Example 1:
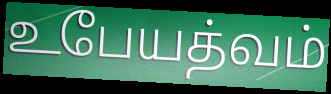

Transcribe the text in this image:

உபேயத்வம்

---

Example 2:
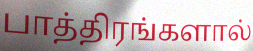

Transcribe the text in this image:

பாத்திரங்களால்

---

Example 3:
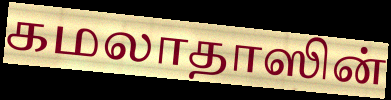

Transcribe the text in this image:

கமலாதாஸின்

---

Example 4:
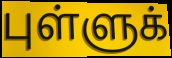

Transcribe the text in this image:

புள்ளுக்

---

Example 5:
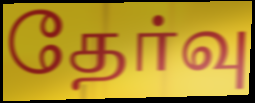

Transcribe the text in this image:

தேர்வு